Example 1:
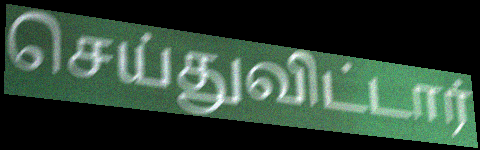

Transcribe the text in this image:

செய்துவிட்டார்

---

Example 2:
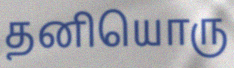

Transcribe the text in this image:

தனியொரு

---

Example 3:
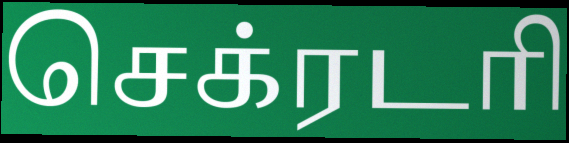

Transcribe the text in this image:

செக்ரடரி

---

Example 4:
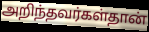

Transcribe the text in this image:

அறிந்தவர்கள்தான்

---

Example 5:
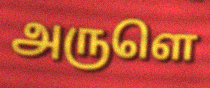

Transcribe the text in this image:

அருளெ